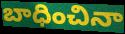
బాధించినా